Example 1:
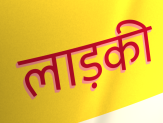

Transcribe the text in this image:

लाड़की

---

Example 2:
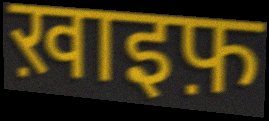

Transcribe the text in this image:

ख़ाइफ़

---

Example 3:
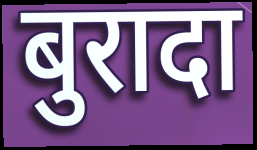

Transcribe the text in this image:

बुरादा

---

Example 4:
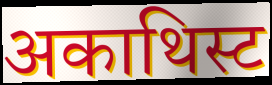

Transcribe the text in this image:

अकाथिस्ट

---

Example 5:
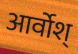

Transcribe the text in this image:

आर्वोश्